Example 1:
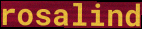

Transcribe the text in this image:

rosalind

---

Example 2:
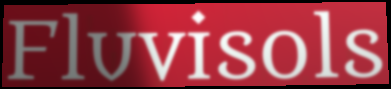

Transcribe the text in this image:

Fluvisols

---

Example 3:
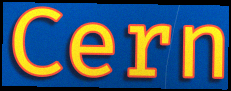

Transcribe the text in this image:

Cern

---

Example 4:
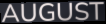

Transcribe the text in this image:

AUGUST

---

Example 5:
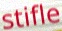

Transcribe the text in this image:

stifle